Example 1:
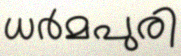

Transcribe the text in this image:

ധർമപുരി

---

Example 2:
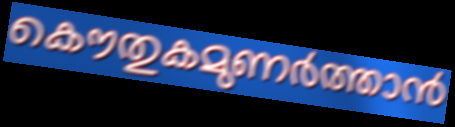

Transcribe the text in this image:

കൌതുകമുണർത്താൻ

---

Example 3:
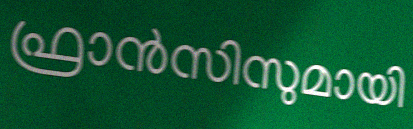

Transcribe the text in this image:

ഫ്രാൻസിസുമായി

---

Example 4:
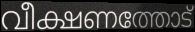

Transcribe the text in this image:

വീക്ഷണത്തോട്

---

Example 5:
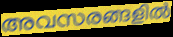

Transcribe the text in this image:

അവസരങ്ങളിൽ